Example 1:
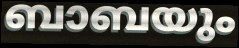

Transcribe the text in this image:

ബാബയും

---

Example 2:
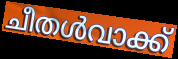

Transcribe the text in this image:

ചീതൾവാക്ക്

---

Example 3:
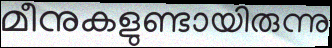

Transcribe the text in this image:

മീനുകളുണ്ടായിരുന്നു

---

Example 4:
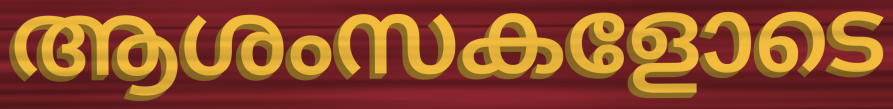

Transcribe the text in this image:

ആശംസകളോടെ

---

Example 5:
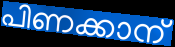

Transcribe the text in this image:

പിണക്കാന്